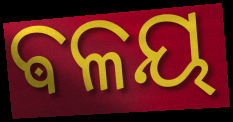
ଵଳୟ